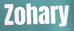
Zohary